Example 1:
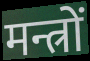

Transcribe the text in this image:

मन्त्रों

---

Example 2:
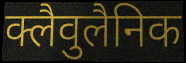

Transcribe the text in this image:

क्लैवुलैनिक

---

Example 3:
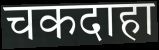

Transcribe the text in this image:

चकदाहा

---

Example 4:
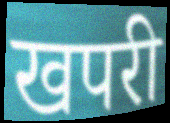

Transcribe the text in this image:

खपरी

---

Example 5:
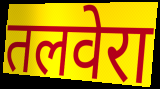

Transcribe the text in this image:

तलवेरा